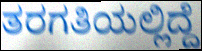
ತರಗತಿಯಲ್ಲಿದ್ದೆ